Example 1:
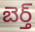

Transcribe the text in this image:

బెర్త్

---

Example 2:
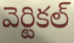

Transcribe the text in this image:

వెర్టికల్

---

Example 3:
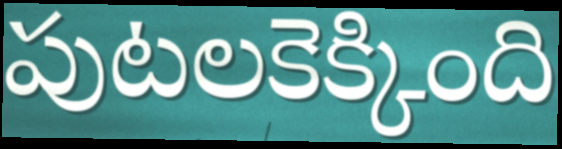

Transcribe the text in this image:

పుటలకెక్కింది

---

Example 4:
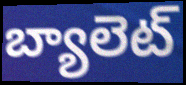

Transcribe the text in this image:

బ్యాలెట్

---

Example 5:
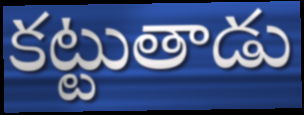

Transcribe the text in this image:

కట్టుతాడు